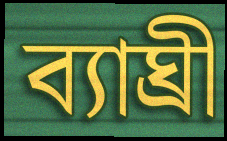
ব্যাঘ্ৰী